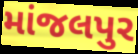
માંજલપુર